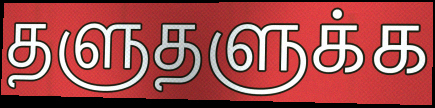
தளுதளுக்க